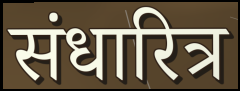
संधारित्र